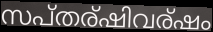
സപ്തര്ഷിവര്ഷം